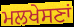
ਮਲਖੇਸਣਾਂ